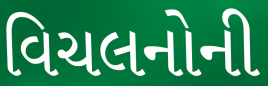
વિચલનોની